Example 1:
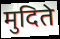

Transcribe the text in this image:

मुदिते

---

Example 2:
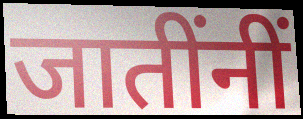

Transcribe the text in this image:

जातींनीं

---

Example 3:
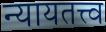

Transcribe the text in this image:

न्यायतत्त्व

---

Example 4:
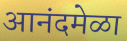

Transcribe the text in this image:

आनंदमेळा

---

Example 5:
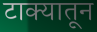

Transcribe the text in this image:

टाक्यातून